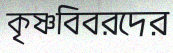
কৃষ্ণবিবরদের